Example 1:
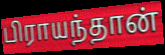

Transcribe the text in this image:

பிராயந்தான்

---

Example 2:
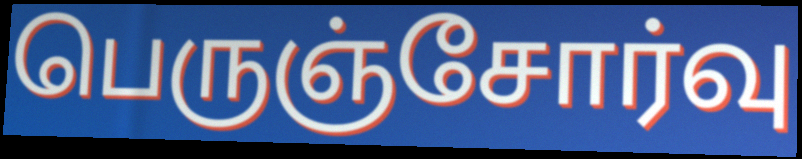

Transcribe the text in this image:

பெருஞ்சோர்வு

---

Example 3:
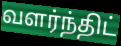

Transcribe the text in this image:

வளர்ந்திட்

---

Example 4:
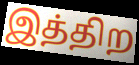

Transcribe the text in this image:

இத்திற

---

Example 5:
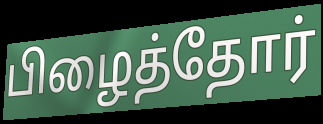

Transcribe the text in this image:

பிழைத்தோர்